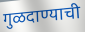
गुळदाण्याची